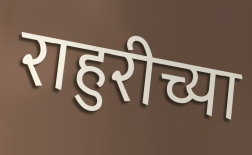
राहुरीच्या